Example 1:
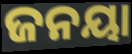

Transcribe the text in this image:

ଜନୟା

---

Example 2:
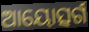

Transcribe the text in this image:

ଆୟୋତ୍ସର୍ଗ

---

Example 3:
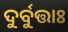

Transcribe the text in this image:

ଦୁର୍ବୁତ୍ତାଃ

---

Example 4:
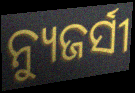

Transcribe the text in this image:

ନ୍ୟୁଜର୍ସୀ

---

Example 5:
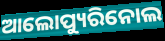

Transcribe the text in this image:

ଆଲୋପ୍ୟୁରିନୋଲ